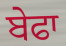
ਬੇਫਾ